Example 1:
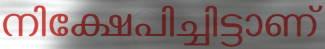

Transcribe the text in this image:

നിക്ഷേപിച്ചിട്ടാണ്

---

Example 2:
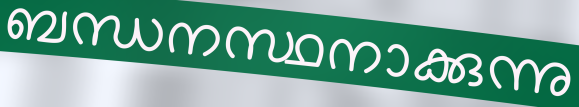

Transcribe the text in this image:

ബന്ധനസ്ഥനാക്കുന്നു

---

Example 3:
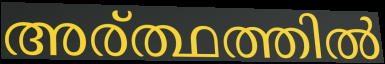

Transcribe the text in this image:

അര്ത്ഥത്തിൽ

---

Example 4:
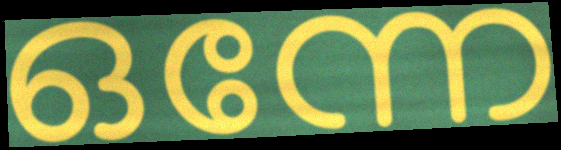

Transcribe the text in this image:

ഒന്നേ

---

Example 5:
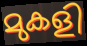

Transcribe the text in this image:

മുകളി